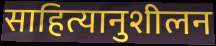
साहित्यानुशीलन